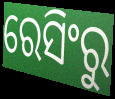
ରେସିଂରୁ